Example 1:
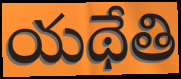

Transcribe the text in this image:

యథేతి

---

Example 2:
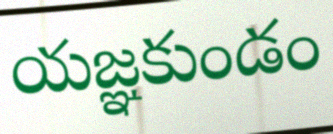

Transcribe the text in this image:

యజ్ఞకుండం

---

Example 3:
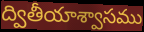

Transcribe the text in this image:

ద్వితీయాశ్వాసము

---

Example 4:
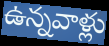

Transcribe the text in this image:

ఉన్నవాళ్లు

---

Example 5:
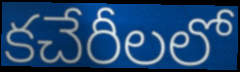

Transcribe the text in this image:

కచేరీలలో